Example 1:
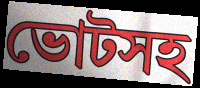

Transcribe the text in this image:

ভোটসহ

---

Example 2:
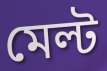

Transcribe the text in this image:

মেল্ট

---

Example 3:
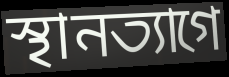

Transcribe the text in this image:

স্থানত্যাগে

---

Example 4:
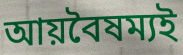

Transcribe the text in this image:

আয়বৈষম্যই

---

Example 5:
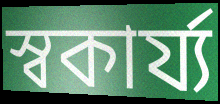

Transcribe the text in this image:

স্বকার্য্য